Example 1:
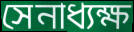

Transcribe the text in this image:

সেনাধ্যক্ষ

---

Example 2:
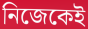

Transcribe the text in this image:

নিজেকেই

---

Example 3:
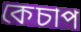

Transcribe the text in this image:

কেচাপ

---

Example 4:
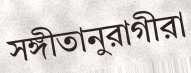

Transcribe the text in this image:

সঙ্গীতানুরাগীরা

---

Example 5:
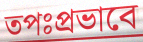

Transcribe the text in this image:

তপঃপ্রভাবে